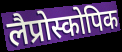
लैप्रोस्कोपिक